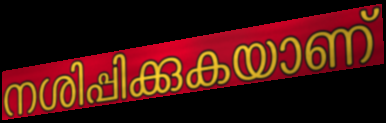
നശിപ്പിക്കുകയാണ്